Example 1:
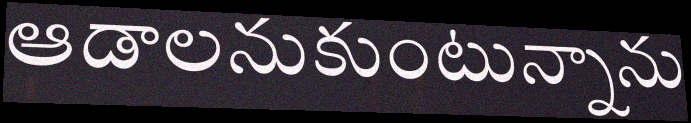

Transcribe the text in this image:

ఆడాలనుకుంటున్నాను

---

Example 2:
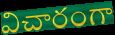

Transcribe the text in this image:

విచారంగా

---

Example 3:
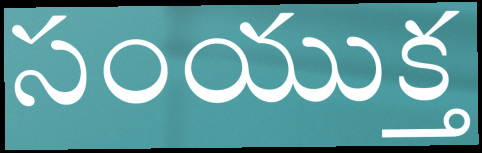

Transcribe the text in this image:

సంయుక్త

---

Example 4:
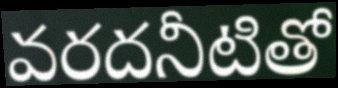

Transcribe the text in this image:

వరదనీటితో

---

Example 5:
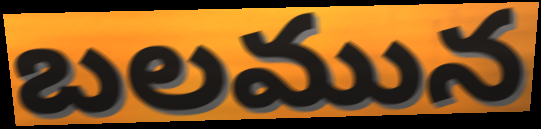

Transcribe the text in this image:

బలమున